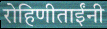
रोहिणीताईंनी